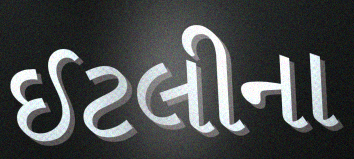
ઈટલીના